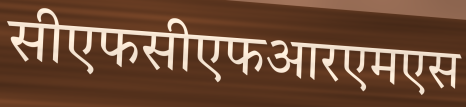
सीएफसीएफआरएमएस